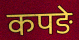
कपङे